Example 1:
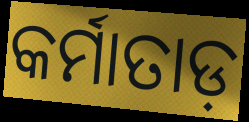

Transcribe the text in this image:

କର୍ମାତାଡ଼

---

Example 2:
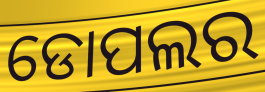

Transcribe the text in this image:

ଡୋପଲର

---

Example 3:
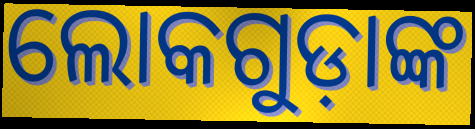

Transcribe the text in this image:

ଲୋକଗୁଡ଼ାଙ୍କ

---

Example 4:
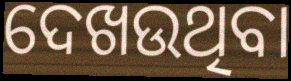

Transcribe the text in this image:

ଦେଖଉଥିବା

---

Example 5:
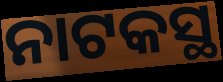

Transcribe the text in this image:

ନାଟକସ୍ଥ